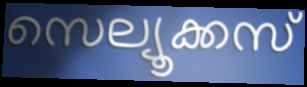
സെല്യൂക്കസ്